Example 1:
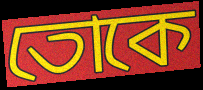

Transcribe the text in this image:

তোকে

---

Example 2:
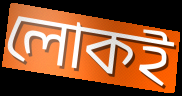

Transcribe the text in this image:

লোকই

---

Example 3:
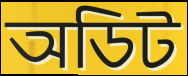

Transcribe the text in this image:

অডিট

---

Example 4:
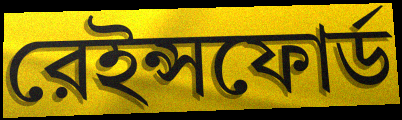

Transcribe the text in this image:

রেইন্সফোর্ড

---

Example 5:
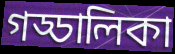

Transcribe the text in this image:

গড্ডালিকা